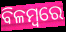
ବିଳମ୍ୱରେ